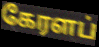
கேரளப்